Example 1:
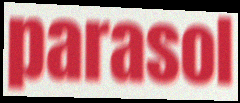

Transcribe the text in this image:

parasol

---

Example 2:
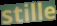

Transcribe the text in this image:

stille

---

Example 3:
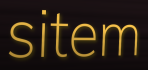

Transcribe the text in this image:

sitem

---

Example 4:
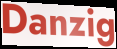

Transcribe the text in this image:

Danzig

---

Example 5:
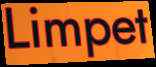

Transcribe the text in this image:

Limpet